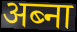
अब्ना